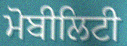
ਮੋਬੀਲਿਟੀ